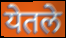
येतले